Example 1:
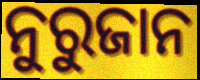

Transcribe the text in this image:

ନୁରୁଜାନ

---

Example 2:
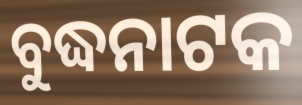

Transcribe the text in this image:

ବୁଦ୍ଧନାଟକ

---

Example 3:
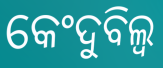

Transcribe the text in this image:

କେଂଦୁବିଲ୍ୱ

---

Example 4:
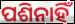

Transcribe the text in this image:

ପଶିନାହିଁ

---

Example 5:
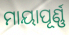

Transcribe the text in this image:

ମାୟାପୂର୍ଣ୍ଣ